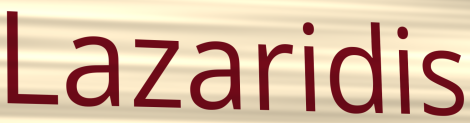
Lazaridis